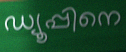
ഡ്യൂപ്പിനെ